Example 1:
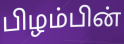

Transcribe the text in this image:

பிழம்பின்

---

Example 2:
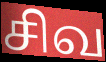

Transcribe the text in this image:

சிவ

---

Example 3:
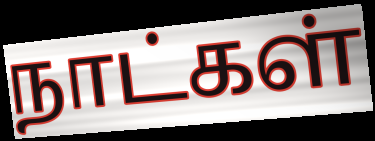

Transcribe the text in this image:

நாட்கள்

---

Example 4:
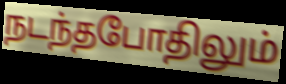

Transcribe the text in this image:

நடந்தபோதிலும்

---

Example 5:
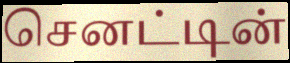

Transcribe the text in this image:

செனட்டின்